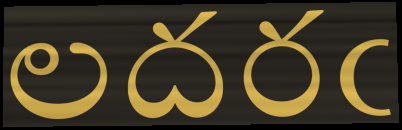
లదరఁ